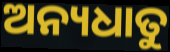
ଅନ୍ୟଧାତୁ